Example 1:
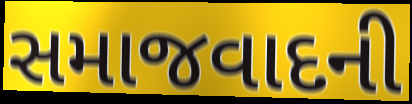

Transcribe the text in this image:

સમાજવાદની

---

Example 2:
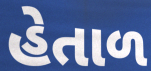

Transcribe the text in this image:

હેતાળ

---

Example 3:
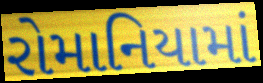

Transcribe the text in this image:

રોમાનિયામાં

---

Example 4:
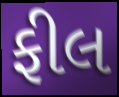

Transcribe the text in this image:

ફીલ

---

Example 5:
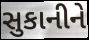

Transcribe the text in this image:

સુકાનીને